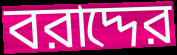
বরাদ্দের